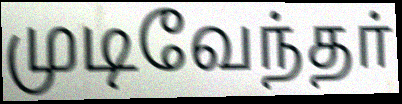
முடிவேந்தர்